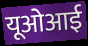
यूओआई